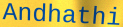
Andhathi